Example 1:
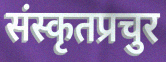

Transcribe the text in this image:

संस्कृतप्रचुर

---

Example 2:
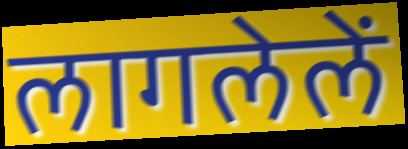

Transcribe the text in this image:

लागलेलें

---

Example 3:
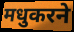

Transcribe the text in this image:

मधुकरने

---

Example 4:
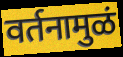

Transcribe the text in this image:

वर्तनामुळं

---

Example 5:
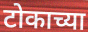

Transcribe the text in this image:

टोकाच्या